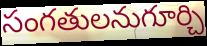
సంగతులనుగూర్చి